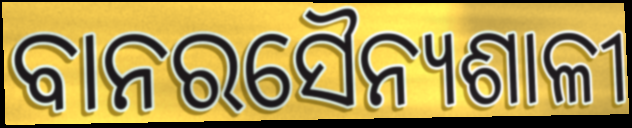
ବାନରସୈନ୍ୟଶାଳୀ